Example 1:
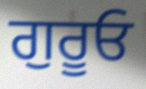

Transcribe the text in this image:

ਗੁਰੂਓ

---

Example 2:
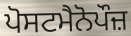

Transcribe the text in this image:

ਪੋਸਟਮੈਨੋਪੌਜ਼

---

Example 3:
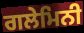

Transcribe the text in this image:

ਗਲੇਮਿਨੀ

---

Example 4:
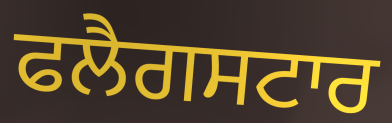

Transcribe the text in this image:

ਫਲੈਗਸਟਾਰ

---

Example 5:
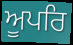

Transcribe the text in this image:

ਅੂਪਰਿ